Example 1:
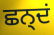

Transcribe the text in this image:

ਛਨ੍ਦਂ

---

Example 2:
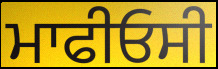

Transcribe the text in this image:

ਮਾਫੀਓਸੀ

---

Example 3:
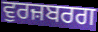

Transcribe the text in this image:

ਵੁਰਜ਼ਬਰਗ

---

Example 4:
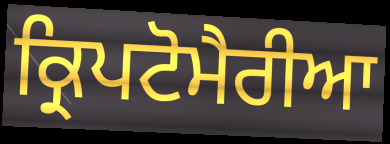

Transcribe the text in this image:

ਕ੍ਰਿਪਟੋਮੈਰੀਆ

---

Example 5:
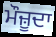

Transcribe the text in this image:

ਮੌਜ਼ੂਦਾ